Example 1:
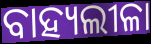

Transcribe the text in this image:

ବାହ୍ୟଲୀଳା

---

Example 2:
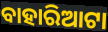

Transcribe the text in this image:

ବାହାରିଆଟା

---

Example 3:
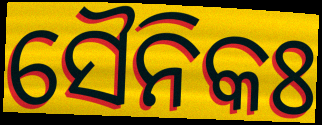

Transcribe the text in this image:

ସୈନିକଃ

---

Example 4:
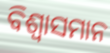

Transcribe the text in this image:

ବିଶ୍ଵାସମାନ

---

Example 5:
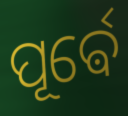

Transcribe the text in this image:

ପୂର୍ଵେ